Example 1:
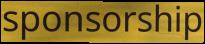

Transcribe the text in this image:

sponsorship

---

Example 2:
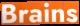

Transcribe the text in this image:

Brains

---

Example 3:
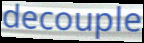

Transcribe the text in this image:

decouple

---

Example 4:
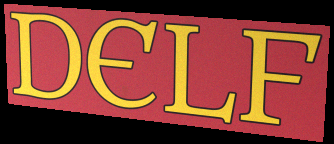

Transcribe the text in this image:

DELF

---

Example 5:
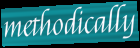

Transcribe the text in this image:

methodically